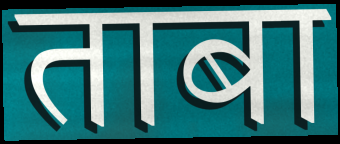
ताबा